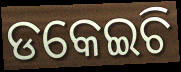
ଡକେଇଚି